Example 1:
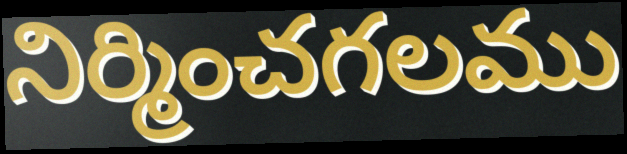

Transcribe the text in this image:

నిర్మించగలము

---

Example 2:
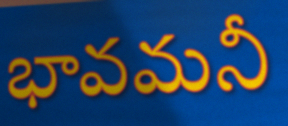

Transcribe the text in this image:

భావమనీ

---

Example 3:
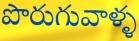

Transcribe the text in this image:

పొరుగువాళ్ళ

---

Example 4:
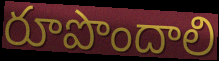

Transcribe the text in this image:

రూపొందాలి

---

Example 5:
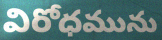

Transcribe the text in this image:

విరోధమును